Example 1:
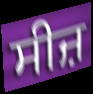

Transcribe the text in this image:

ਸੀਜ਼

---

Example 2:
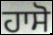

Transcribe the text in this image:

ਹਾਸੋ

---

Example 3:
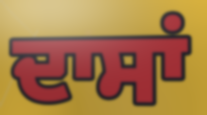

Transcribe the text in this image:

ਦਾਸਾਂ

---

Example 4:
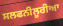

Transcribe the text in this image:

ਸਲਫਨੀਲੂਰੀਆ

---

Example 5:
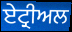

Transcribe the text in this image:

ਏਟ੍ਰੀਅਲ